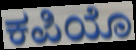
ಕಪಿಯೊ